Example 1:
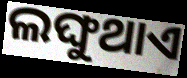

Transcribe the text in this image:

ଲଙ୍ଘୁଥାଏ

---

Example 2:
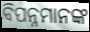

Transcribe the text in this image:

ବିପନ୍ନମାନଙ୍କ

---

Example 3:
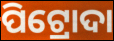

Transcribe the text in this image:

ପିଟ୍ରୋଦା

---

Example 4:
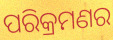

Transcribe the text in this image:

ପରିକ୍ରମଣର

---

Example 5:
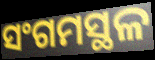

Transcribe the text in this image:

ସଂଗମସ୍ଥଳ